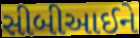
સીબીઆઈને